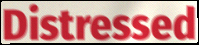
Distressed